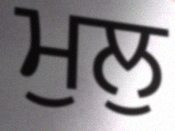
ਮੁਲੁ